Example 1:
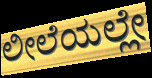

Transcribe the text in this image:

ಲೀಲೆಯಲ್ಲೇ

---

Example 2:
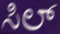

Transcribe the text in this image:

ಸಿಲ್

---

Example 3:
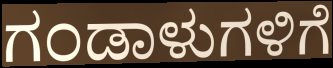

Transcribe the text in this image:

ಗಂಡಾಳುಗಳಿಗೆ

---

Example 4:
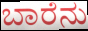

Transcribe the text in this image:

ಬಾರೆನು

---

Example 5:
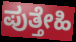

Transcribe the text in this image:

ಪುತ್ತೇಹಿ